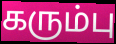
கரும்பு